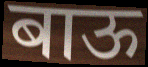
बाऊ